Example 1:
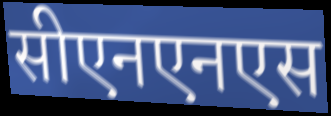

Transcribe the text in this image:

सीएनएनएस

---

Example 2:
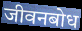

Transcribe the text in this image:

जीवनबोध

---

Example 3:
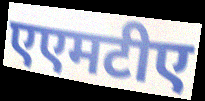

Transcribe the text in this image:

एएमटीए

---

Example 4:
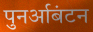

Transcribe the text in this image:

पुनर्आबंटन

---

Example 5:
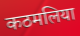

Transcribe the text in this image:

कठमलिया